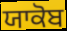
ਯਾਕੋਬ